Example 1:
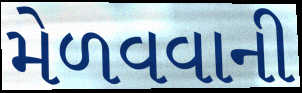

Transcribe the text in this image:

મેળવવાની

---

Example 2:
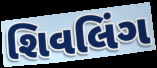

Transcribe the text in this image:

શિવલિંગ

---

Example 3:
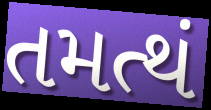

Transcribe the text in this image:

તમત્થં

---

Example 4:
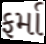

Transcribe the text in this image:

ફર્મા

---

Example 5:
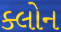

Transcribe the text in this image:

ક્લોન